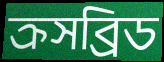
ক্রসব্রিড